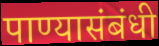
पाण्यासंबंधी